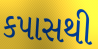
કપાસથી